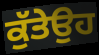
ਕੁੱਤੇਉਹ